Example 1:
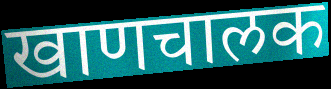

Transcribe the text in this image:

खाणचालक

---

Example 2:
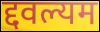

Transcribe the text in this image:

द्दवल्यम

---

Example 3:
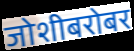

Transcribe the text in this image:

जोशीबरोबर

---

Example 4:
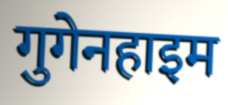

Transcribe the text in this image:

गुगेनहाइम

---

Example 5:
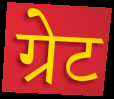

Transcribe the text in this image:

ग्रेट